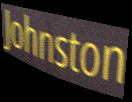
Johnston